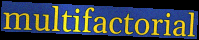
multifactorial